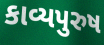
કાવ્યપુરુષ